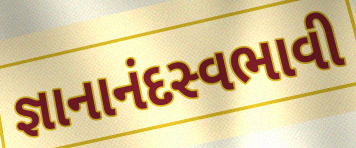
જ્ઞાનાનંદસ્વભાવી